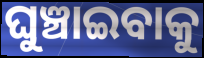
ଘୁଞ୍ଚାଇବାକୁ